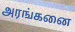
அரங்கனை